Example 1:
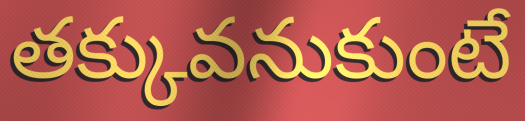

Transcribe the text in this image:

తక్కువనుకుంటే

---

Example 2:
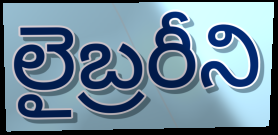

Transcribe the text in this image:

లైబ్రరీని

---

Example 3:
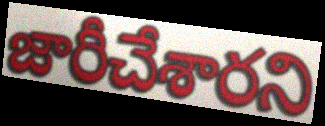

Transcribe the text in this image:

జారీచేశారని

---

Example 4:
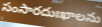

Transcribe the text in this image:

సంసారదుఃఖాలను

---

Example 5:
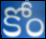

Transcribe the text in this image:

కోం